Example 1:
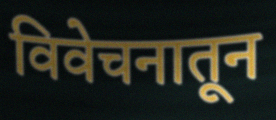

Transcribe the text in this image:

विवेचनातून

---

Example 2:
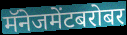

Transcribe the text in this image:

मॅनेजमेंटबरोबर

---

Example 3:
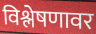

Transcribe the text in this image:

विश्लेषणावर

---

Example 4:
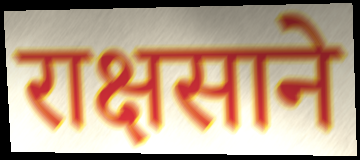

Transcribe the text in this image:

राक्षसाने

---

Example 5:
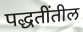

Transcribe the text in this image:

पद्धतींतील